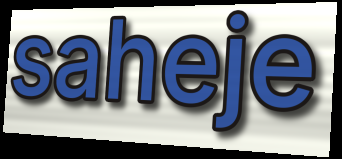
saheje